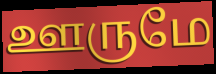
ஊருமே